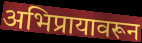
अभिप्रायावरून